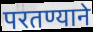
परतण्याने